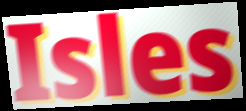
Isles